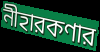
নীহারকণার